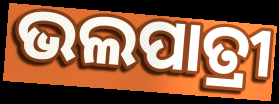
ଭଲପାତ୍ରୀ